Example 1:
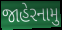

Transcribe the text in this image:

જાહેરનામુ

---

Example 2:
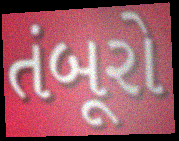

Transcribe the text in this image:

તંબૂરો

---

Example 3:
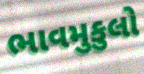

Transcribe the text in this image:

ભાવમુકુલો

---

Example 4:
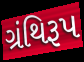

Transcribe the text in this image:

ગ્રંથિરૂપ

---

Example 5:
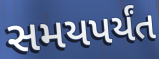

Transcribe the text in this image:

સમયપર્યંત